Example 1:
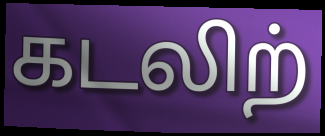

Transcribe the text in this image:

கடலிற்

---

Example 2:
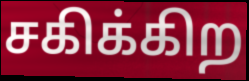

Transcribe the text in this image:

சகிக்கிற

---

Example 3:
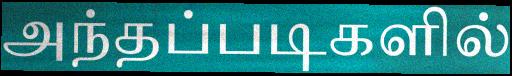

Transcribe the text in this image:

அந்தப்படிகளில்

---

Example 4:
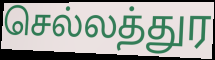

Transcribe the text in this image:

செல்லத்துர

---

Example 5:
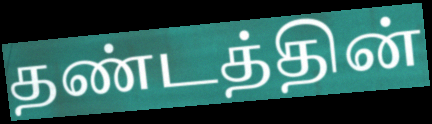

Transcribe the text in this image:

தண்டத்தின்